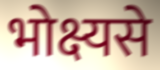
भोक्ष्यसे